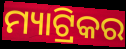
ମ୍ୟାଟ୍ରିକର